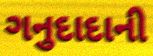
ગનુદાદાની